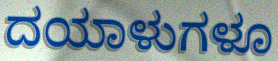
ದಯಾಳುಗಳೂ